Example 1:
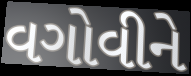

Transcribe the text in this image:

વગોવીને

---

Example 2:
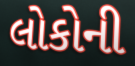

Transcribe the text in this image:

લોકોની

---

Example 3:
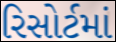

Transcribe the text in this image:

રિસોર્ટમાં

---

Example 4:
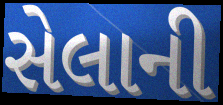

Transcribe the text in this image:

સેલાની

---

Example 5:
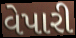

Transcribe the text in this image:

વેપારી